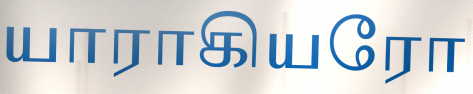
யாராகியரோ